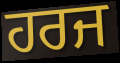
ਹਰਜ